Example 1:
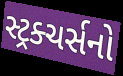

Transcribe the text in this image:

સ્ટ્રક્ચર્સનો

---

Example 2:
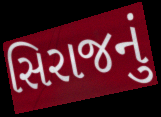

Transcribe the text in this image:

સિરાજનું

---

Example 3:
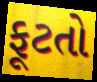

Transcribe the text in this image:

ફૂટતો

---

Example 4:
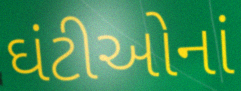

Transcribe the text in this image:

ઘંટીઓનાં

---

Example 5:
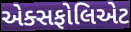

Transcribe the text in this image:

એક્સફોલિએટ